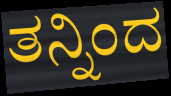
ತನ್ನಿಂದ